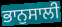
ਭਾਨੁਸਾਲੀ